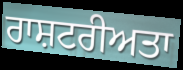
ਰਾਸ਼ਟਰੀਅਤਾ